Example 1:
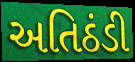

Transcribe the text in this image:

અતિઠંડી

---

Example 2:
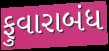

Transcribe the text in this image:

ફુવારાબંધ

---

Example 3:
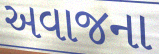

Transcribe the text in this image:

અવાજના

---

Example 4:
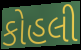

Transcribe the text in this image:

કોહલી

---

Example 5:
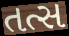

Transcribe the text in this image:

તત્સ